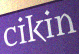
cikin